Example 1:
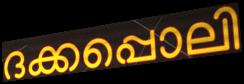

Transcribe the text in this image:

ദക്കപ്പൊലി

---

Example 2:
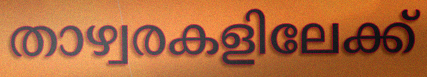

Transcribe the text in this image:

താഴ്വരകളിലേക്ക്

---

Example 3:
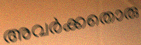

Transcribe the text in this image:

അവർക്കതൊരു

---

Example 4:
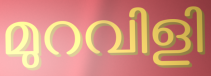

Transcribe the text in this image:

മുറവിളി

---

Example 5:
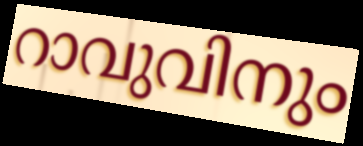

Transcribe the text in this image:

റാവുവിനും